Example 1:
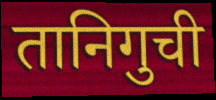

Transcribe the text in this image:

तानिगुची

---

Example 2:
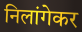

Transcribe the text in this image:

निलांगेकर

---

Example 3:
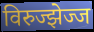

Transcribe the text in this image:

विरुज्झेज्ज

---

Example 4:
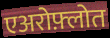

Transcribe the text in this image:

एअरोफ़्लोत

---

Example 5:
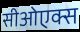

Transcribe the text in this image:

सीओएक्स